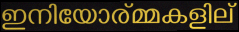
ഇനിയോര്മ്മകളില്